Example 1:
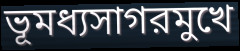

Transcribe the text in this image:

ভূমধ্যসাগরমুখে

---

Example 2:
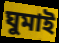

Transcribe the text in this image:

ঘুমাই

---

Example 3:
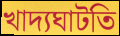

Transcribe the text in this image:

খাদ্যঘাটতি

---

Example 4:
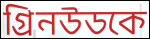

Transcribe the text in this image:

গ্রিনউডকে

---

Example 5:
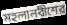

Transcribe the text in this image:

মহলানবীশের